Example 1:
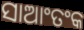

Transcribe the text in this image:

ସାଆଂତଂକ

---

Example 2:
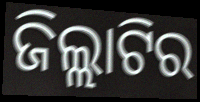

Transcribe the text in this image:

ଜିଲ୍ଲାଟିର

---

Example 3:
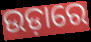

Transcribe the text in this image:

ଉଡ଼ାରେ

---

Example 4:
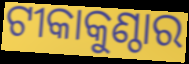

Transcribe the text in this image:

ଟୀକାକୁଣ୍ଠାର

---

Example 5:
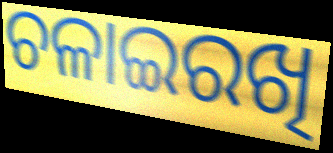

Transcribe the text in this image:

ଚଳାଇରଖି